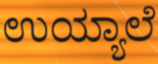
ಉಯ್ಯಾಲೆ